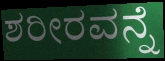
ಶರೀರವನ್ನೆ